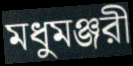
মধুমঞ্জরী